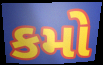
કમો